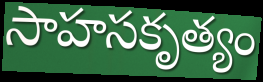
సాహసకృత్యం